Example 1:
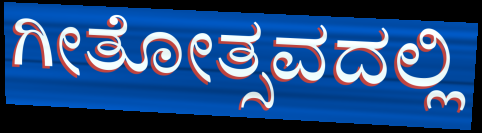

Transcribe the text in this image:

ಗೀತೋತ್ಸವದಲ್ಲಿ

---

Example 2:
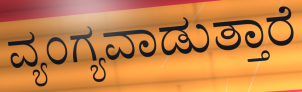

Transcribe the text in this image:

ವ್ಯಂಗ್ಯವಾಡುತ್ತಾರೆ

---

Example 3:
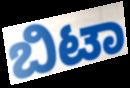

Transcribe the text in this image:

ಬಿಟಾ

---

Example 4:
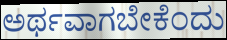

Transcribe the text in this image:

ಅರ್ಥವಾಗಬೇಕೆಂದು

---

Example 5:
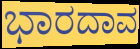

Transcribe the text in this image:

ಭಾರದಾವ